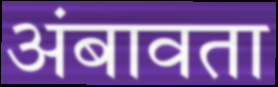
अंबावता